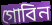
গোবিন